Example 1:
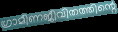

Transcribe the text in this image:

ഗ്രാമീണജീവിതത്തിന്റെ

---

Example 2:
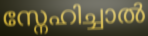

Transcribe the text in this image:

സ്നേഹിച്ചാൽ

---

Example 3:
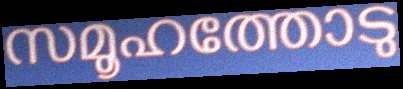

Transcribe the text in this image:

സമൂഹത്തോടു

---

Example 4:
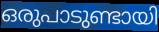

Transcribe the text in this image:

ഒരുപാടുണ്ടായി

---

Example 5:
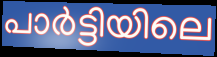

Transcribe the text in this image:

പാർട്ടിയിലെ